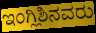
ಇಂಗ್ಲಿಶಿನವರು